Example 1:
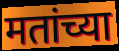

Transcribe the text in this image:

मतांच्या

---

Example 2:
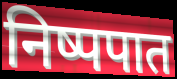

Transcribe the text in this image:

निष्पपात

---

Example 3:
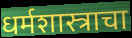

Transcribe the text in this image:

धर्मशास्त्राचा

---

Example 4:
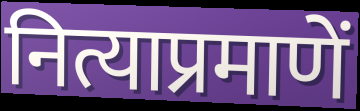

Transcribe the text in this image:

नित्याप्रमाणें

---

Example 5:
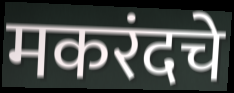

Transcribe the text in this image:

मकरंदचे